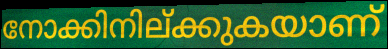
നോക്കിനില്ക്കുകയാണ്